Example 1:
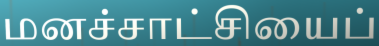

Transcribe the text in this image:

மனச்சாட்சியைப்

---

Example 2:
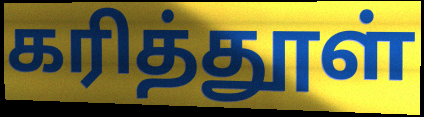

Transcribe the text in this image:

கரித்தூள்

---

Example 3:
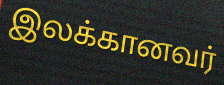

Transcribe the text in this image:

இலக்கானவர்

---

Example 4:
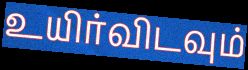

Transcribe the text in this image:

உயிர்விடவும்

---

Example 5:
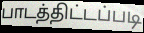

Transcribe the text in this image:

பாடத்திட்டப்படி